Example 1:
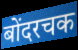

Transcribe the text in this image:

बोंदरचक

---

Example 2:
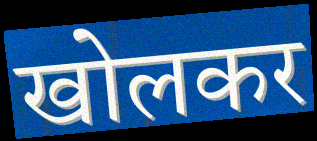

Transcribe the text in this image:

खोलकर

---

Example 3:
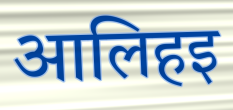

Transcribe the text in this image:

आलिहइ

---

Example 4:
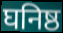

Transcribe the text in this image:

घनिष्ठ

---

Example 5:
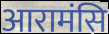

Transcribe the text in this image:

आरामंसि